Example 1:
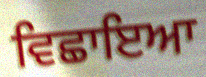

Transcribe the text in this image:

ਵਿਛਾਇਆ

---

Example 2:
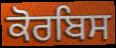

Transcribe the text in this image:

ਕੋਰਬਿਸ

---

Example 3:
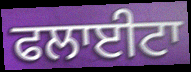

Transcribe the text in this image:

ਫਲਾਈਟਾ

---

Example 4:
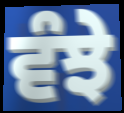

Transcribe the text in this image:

ਵੰਝੇ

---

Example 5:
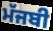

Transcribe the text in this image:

ਮੱਜਬੀ